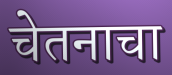
चेतनाचा